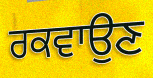
ਰਕਵਾਉਣ